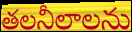
తలనీలాలను